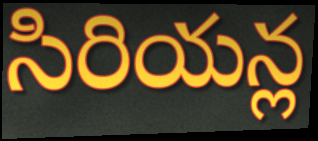
సిరియన్ల